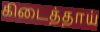
கிடைத்தாய்